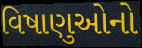
વિષાણુઓનો